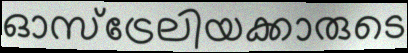
ഓസ്ട്രേലിയക്കാരുടെ